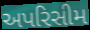
અપરિસીમ